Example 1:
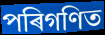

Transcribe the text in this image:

পৰিগণিত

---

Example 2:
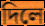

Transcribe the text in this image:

দিলে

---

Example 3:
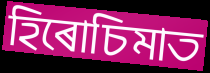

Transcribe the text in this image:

হিৰোচিমাত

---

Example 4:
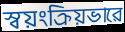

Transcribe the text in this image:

স্বয়ংক্ৰিয়ভাৱে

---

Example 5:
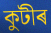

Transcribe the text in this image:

কুটীৰ